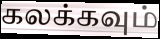
கலக்கவும்